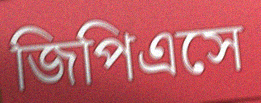
জিপিএসে